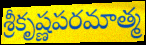
శ్రీకృష్ణపరమాత్మ